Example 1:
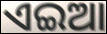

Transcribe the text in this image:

ଏଇଆ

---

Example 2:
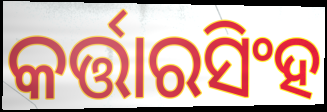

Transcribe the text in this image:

କର୍ତ୍ତାରସିଂହ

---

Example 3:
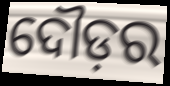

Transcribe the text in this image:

ଦୌଡ଼ର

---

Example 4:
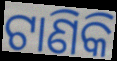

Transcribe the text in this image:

ଟାଣିକି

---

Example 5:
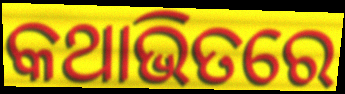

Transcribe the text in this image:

କଥାଭିତରେ